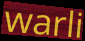
warli